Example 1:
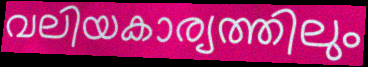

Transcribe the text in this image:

വലിയകാര്യത്തിലും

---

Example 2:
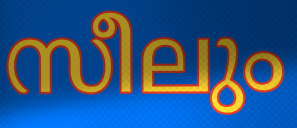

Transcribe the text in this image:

സീലും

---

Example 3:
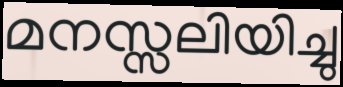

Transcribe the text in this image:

മനസ്സലിയിച്ചു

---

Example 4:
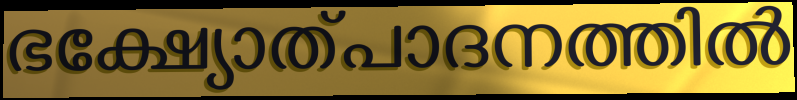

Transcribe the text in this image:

ഭക്ഷ്യോത്പാദനത്തിൽ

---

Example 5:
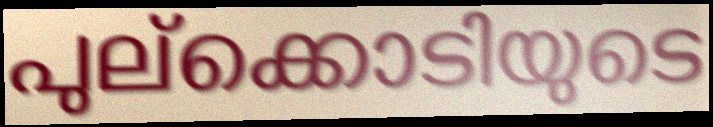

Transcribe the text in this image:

പുല്ക്കൊടിയുടെ